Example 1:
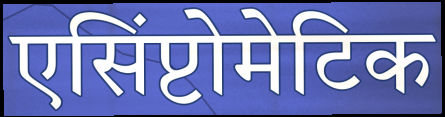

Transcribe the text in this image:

एसिंप्टोमेटिक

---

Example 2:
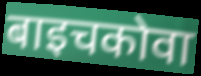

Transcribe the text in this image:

बाइचकोवा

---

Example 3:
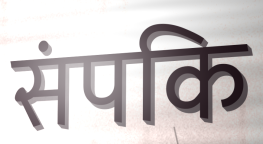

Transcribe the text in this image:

संपकि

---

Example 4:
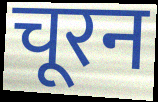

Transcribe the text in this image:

चूरन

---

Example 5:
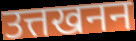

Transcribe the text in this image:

उत्तखनन